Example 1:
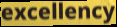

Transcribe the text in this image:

excellency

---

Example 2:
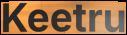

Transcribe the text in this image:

Keetru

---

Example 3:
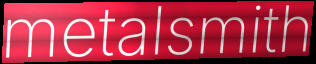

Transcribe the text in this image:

metalsmith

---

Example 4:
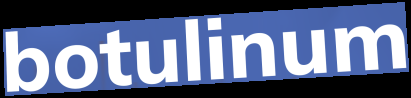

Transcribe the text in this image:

botulinum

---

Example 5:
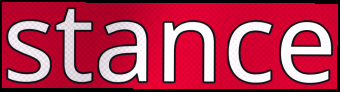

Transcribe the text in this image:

stance